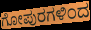
ಗೋಪುರಗಳಿಂದ